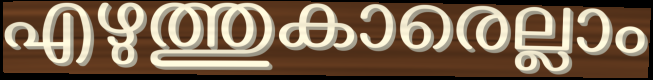
എഴുത്തുകാരെല്ലാം